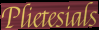
Plietesials